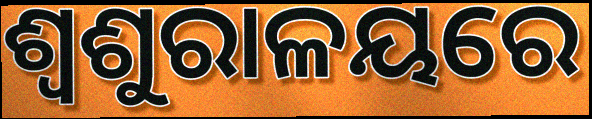
ଶ୍ୱଶୁରାଳୟରେ